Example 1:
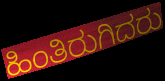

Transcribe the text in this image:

ಹಿಂತಿರುಗಿದರು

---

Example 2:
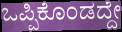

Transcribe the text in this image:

ಒಪ್ಪಿಕೊಂಡದ್ದೇ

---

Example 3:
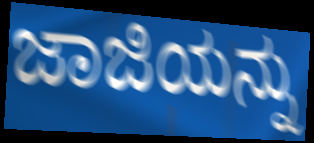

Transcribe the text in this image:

ಜಾಜಿಯನ್ನು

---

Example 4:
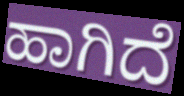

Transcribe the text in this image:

ಹಾಗಿದೆ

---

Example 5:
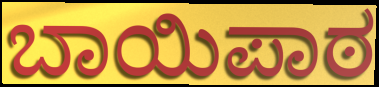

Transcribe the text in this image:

ಬಾಯಿಪಾಠ